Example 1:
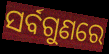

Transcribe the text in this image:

ସର୍ବଗୁଣରେ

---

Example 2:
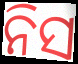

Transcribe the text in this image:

ନିସ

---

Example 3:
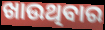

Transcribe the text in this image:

ଖାଉଥିବାର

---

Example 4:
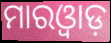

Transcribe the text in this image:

ମାରଓ୍ୱାଡ଼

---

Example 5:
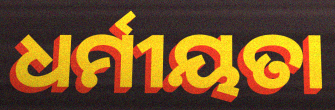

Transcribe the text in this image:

ଧର୍ମୀୟତା